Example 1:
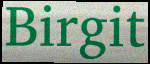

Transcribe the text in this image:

Birgit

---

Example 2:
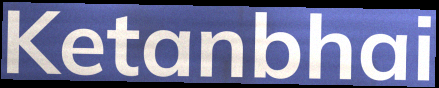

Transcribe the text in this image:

Ketanbhai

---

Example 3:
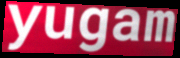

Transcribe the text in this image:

yugam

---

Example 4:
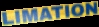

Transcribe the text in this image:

LIMATION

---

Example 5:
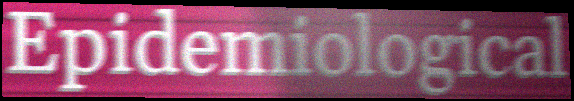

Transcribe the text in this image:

Epidemiological